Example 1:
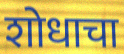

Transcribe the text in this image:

शोधाचा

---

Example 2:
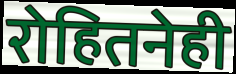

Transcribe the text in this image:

रोहितनेही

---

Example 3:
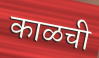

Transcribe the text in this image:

काळची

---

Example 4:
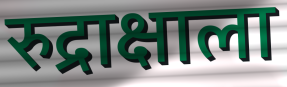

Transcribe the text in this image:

रुद्राक्षाला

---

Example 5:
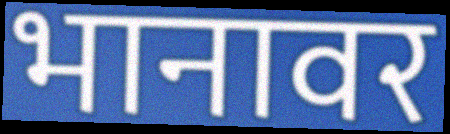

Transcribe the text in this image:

भानावर